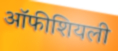
ऑफीशियली